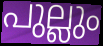
പുല്ലും